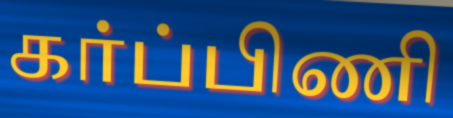
கர்ப்பிணி